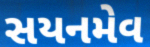
સયનમેવ